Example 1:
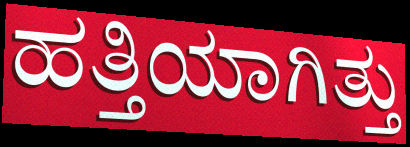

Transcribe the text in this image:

ಹತ್ತಿಯಾಗಿತ್ತು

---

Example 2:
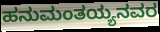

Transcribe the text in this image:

ಹನುಮಂತಯ್ಯನವರ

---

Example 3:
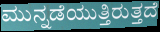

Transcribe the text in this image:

ಮುನ್ನಡೆಯುತ್ತಿರುತ್ತದೆ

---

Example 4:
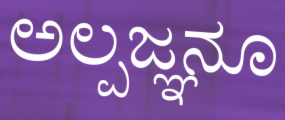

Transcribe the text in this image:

ಅಲ್ಪಜ್ಞನೂ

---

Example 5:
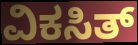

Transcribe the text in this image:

ವಿಕಸಿತ್